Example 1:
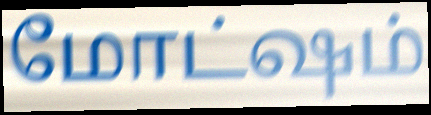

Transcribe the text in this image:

மோட்ஷம்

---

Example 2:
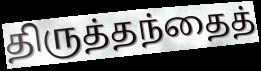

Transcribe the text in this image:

திருத்தந்தைத்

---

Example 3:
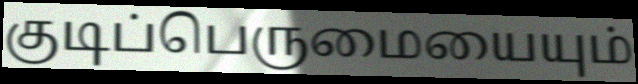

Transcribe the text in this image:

குடிப்பெருமையையும்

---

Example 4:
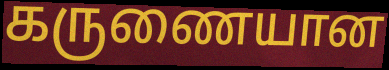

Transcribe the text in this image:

கருணையான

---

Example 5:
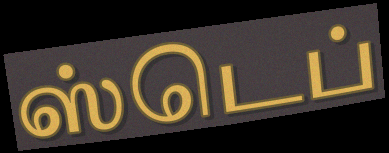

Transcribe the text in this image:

ஸ்டெப்